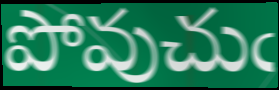
పోవుచుఁ